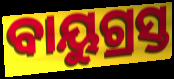
ବାୟୁଗ୍ରସ୍ତ